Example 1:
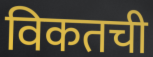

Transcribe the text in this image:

विकतची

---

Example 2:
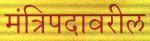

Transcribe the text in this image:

मंत्रिपदावरील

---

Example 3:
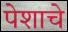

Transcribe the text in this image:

पेशाचे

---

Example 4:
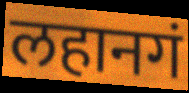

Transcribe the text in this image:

लहानगं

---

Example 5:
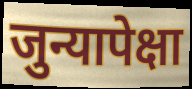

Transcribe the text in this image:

जुन्यापेक्षा